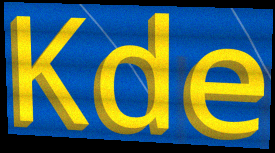
Kde